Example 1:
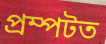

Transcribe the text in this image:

প্ৰম্পটত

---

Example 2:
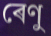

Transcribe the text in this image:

ৰেণু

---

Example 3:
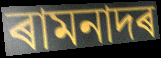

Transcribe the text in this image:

ৰামনাদৰ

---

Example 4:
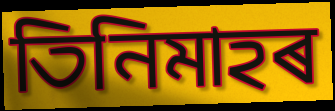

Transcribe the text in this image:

তিনিমাহৰ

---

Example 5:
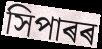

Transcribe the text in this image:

সিপাৰৰ